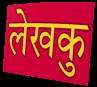
लेखकु